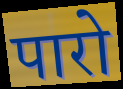
पारो